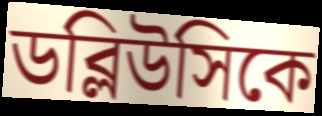
ডব্লিউসিকে